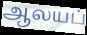
ஆலயப்